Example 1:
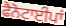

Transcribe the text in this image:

ਫੈਨੋਟਾਈਪਾਂ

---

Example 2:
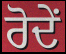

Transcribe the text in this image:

ਰੋਦੇਂ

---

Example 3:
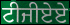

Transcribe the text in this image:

ਟੀਜੀਏਏ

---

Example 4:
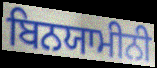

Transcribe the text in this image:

ਬਿਨਯਾਮੀਨੀ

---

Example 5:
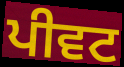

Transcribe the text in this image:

ਪੀਵਟ